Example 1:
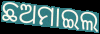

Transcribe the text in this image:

ଛଅମାଇଲ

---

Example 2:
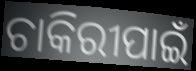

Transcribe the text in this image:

ଚାକିରୀପାଇଁ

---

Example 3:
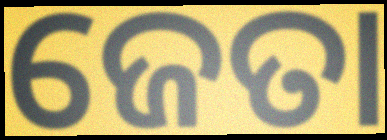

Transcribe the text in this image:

ଜେତା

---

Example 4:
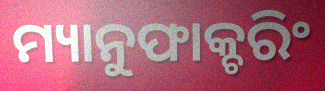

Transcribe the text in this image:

ମ୍ୟାନୁଫାକ୍ଚରିଂ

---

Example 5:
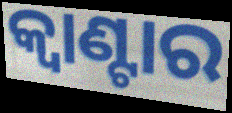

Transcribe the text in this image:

କ୍ୱାଣ୍ଟାର